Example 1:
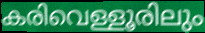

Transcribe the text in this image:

കരിവെള്ളൂരിലും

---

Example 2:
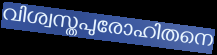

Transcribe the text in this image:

വിശ്വസ്തപുരോഹിതനെ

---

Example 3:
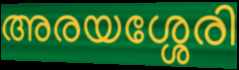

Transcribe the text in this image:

അരയശ്ശേരി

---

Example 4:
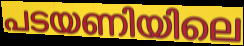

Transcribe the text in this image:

പടയണിയിലെ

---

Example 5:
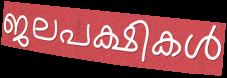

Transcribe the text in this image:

ജലപക്ഷികൾ